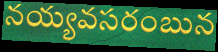
నయ్యవసరంబున